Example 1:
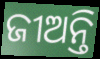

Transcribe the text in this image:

ଜୀଅନ୍ତି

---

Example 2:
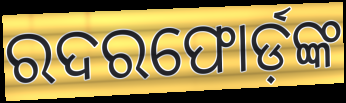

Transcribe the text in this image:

ରଦରଫୋର୍ଡ଼ଙ୍କ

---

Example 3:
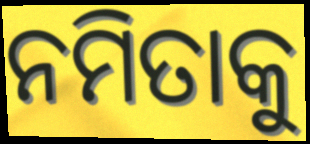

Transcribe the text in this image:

ନମିତାକୁ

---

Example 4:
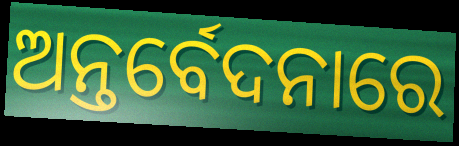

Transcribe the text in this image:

ଅନ୍ତର୍ବେଦନାରେ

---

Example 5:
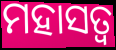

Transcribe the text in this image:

ମହାସତ୍ୱ